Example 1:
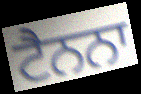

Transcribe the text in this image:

ਟੈਨਨਾ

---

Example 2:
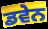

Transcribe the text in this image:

ਡਵੇਨ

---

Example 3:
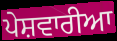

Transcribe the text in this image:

ਪੇਸ਼ਵਾਰੀਆ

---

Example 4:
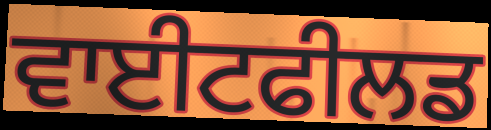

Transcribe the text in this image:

ਵਾਈਟਫੀਲਡ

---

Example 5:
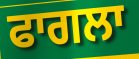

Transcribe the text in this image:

ਫਾਗਲਾ